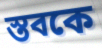
স্তবকে